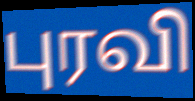
புரவி